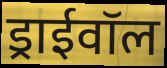
ड्राईवॉल